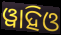
ୱାହିଓ